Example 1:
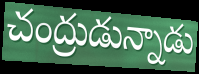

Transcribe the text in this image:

చంద్రుడున్నాడు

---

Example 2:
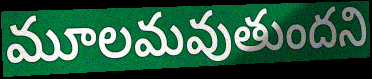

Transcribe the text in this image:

మూలమవుతుందని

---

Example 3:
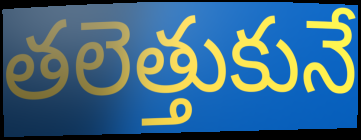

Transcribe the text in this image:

తలెత్తుకునే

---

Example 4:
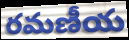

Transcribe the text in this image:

రమణీయ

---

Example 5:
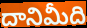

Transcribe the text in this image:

దానిమీది